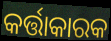
କର୍ତ୍ତାକାରକ